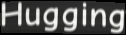
Hugging